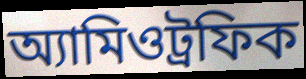
অ্যামিওট্রফিক